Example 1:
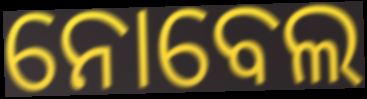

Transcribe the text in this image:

ନୋବେଲ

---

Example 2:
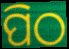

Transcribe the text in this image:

ପିଠ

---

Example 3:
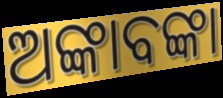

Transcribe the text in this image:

ଅଙ୍କାବଙ୍କା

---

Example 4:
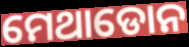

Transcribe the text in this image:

ମେଥାଡୋନ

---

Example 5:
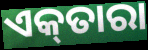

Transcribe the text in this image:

ଏକ୍‌ତାରା